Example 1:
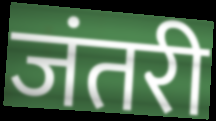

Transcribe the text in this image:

जंतरी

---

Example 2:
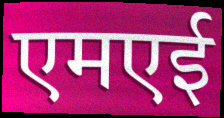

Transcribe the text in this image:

एमएई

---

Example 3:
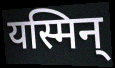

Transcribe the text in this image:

यस्मिन्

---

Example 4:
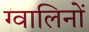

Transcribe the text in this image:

ग्वालिनों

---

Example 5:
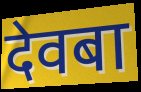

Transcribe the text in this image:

देवबा